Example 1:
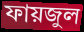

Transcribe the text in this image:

ফায়জুল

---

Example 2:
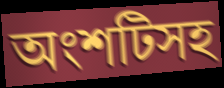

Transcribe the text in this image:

অংশটিসহ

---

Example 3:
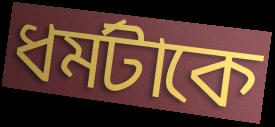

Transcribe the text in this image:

ধর্মটাকে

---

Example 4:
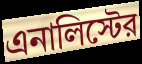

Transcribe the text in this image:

এনালিস্টের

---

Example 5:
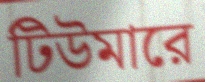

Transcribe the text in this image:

টিউমারে